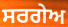
ਸਰਗੇਅ